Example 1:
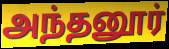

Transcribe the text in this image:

அந்தனூர்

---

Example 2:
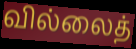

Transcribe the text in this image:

வில்லைத்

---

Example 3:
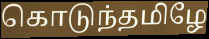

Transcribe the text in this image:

கொடுந்தமிழே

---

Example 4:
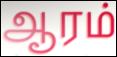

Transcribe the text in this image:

ஆரம்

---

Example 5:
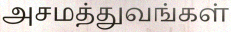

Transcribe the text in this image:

அசமத்துவங்கள்